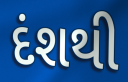
દંશથી